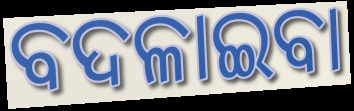
ବଦଳାଇବା